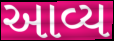
આવ્ય